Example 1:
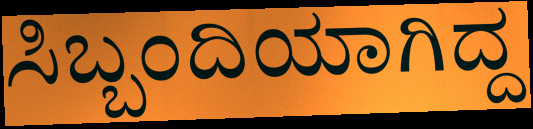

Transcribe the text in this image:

ಸಿಬ್ಬಂದಿಯಾಗಿದ್ದ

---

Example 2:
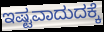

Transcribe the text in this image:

ಇಷ್ಟವಾದುದಕ್ಕೆ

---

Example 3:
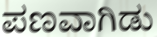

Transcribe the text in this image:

ಪಣವಾಗಿಡು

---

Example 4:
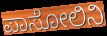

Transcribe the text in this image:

ಪಾಸೋಲಿನಿ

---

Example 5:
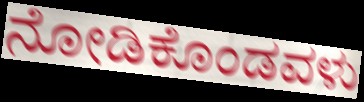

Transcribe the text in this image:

ನೋಡಿಕೊಂಡವಳು